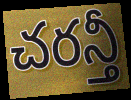
చరన్తీ